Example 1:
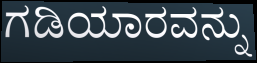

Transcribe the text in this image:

ಗಡಿಯಾರವನ್ನು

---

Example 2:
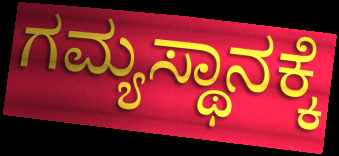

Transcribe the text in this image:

ಗಮ್ಯಸ್ಥಾನಕ್ಕೆ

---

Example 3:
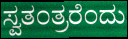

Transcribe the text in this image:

ಸ್ವತಂತ್ರರೆಂದು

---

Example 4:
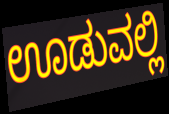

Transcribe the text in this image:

ಊಡುವಲ್ಲಿ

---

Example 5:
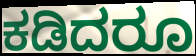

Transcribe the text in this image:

ಕಡಿದರೂ